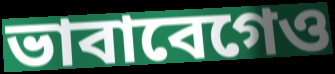
ভাবাবেগেও